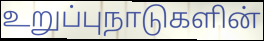
உறுப்புநாடுகளின்